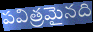
పవిత్రమైనది